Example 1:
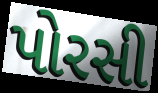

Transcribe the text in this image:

પોરસી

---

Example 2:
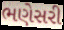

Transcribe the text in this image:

ભણેસરી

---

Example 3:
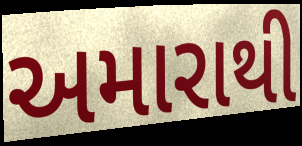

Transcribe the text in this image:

અમારાથી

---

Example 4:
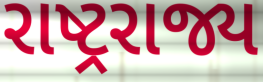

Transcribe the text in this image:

રાષ્ટ્રરાજ્ય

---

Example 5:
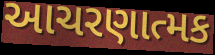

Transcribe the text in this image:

આચરણાત્મક